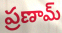
ప్రణామ్